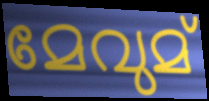
മേവുമ്